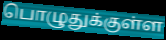
பொழுதுக்குள்ள